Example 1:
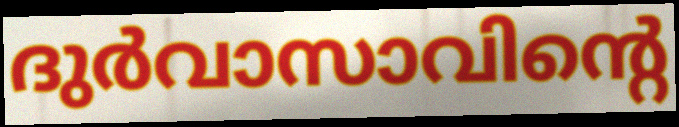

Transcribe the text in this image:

ദുർവാസാവിന്റെ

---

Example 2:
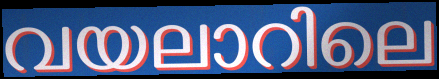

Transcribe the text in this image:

വയലാറിലെ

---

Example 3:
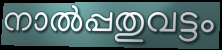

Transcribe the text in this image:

നാൽപ്പതുവട്ടം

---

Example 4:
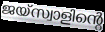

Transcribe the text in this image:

ജയ്സ്വാളിന്റെ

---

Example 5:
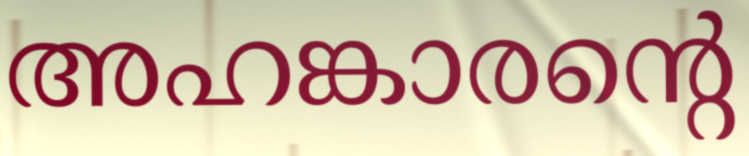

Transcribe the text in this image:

അഹങ്കാരന്റെ